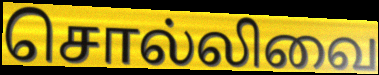
சொல்லிவை